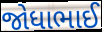
જોધાભાઈ